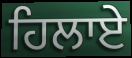
ਹਿਲਾਏ